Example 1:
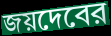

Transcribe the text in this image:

জয়দেবের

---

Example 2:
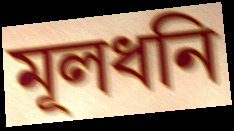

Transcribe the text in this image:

মূলধনি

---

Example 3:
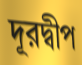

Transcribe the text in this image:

দূরদ্বীপ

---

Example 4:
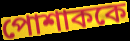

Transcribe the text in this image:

পোশাককে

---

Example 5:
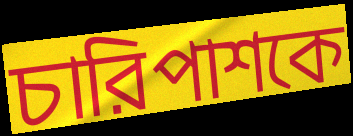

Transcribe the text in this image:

চারিপাশকে